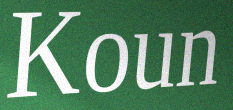
Koun